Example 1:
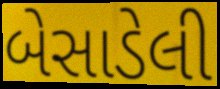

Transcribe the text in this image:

બેસાડેલી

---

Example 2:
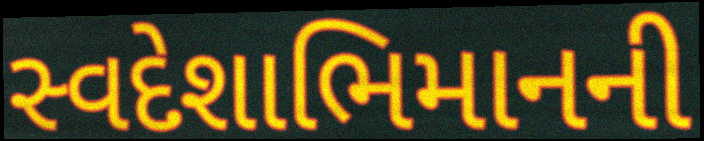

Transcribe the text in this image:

સ્વદેશાભિમાનની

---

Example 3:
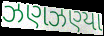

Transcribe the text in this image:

ઝણઝણ્યા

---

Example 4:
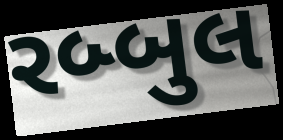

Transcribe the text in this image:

રબ્બુલ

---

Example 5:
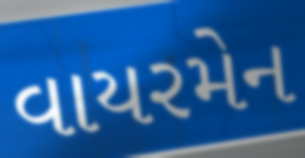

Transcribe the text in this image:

વાયરમેન